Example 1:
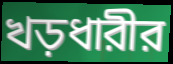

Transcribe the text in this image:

খড়ধারীর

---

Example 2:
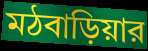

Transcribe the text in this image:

মঠবাড়িয়ার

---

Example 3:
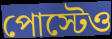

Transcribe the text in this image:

পোস্টেও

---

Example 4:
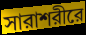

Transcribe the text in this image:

সারাশরীরে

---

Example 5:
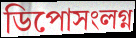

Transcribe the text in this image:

ডিপোসংলগ্ন